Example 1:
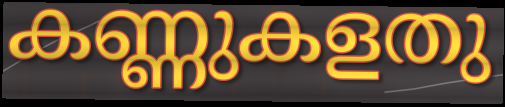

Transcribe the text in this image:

കണ്ണുകളതു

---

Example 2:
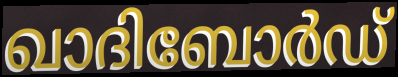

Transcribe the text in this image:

ഖാദിബോർഡ്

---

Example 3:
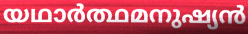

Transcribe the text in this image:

യഥാർത്ഥമനുഷ്യൻ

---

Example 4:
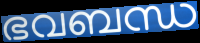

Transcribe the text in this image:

ഭവബന്ധ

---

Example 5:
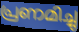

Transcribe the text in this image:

പ്രണമിച്ചു